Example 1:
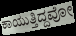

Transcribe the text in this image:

ಕಾಯುತ್ತಿದ್ದವೋ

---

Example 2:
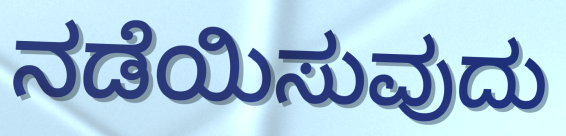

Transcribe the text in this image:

ನಡೆಯಿಸುವುದು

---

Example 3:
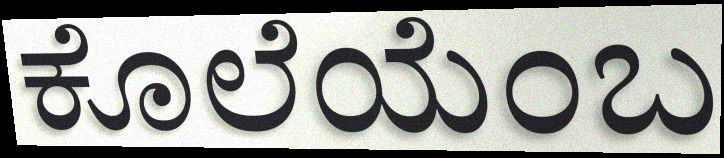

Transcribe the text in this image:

ಕೊಲೆಯೆಂಬ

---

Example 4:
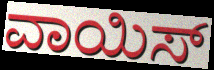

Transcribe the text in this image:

ವಾಯಿಸ್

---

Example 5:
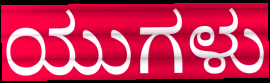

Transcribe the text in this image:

ಯುಗಳು